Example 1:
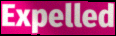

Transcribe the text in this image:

Expelled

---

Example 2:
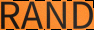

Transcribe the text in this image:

RAND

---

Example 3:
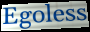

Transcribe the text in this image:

Egoless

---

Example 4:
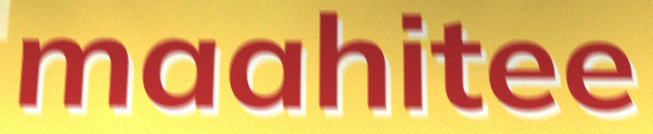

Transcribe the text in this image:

maahitee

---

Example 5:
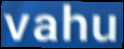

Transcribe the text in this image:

vahu